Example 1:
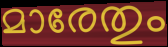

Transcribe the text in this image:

മാരേതും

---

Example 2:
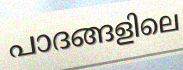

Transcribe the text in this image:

പാദങ്ങളിലെ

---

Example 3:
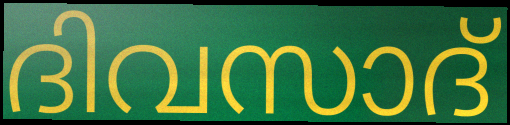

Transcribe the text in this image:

ദിവസാദ്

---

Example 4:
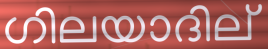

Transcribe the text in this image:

ഗിലയാദില്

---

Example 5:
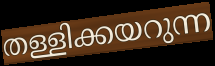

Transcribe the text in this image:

തള്ളിക്കയറുന്ന